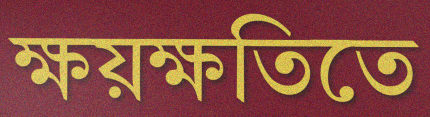
ক্ষয়ক্ষতিতে